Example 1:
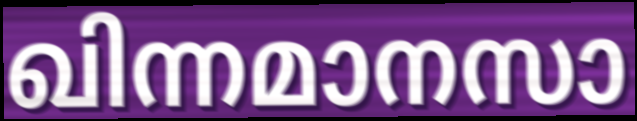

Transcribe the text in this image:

ഖിന്നമാനസാ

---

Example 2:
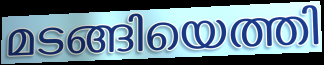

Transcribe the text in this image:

മടങ്ങിയെത്തി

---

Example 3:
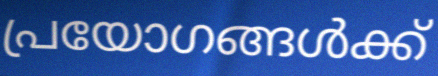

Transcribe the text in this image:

പ്രയോഗങ്ങൾക്ക്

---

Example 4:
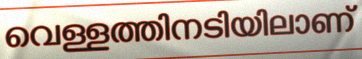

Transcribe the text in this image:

വെള്ളത്തിനടിയിലാണ്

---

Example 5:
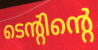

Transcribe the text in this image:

ടെന്റിന്റെ